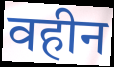
वहीन